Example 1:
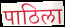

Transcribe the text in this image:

पाठिला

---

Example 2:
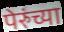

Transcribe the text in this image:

पेरुंच्या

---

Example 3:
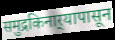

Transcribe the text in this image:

समुद्रकिनार्यापासून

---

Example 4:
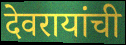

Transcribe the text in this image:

देवरायांची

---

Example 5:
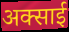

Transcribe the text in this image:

अक्साई